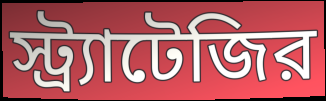
স্ট্র্যাটেজির